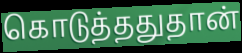
கொடுத்ததுதான்